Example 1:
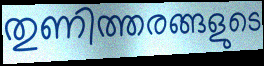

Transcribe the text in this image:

തുണിത്തരങ്ങളുടെ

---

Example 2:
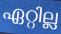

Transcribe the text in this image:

ഏറ്റില്ല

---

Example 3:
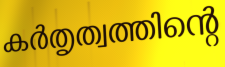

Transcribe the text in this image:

കർതൃത്വത്തിന്റെ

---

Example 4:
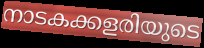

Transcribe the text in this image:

നാടകക്കളരിയുടെ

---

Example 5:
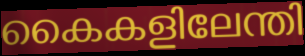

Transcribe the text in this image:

കൈകളിലേന്തി